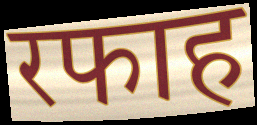
रफाह